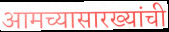
आमच्यासारख्यांची